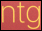
ntg